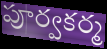
పూర్వకర్మ